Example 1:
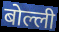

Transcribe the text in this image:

बोल्ली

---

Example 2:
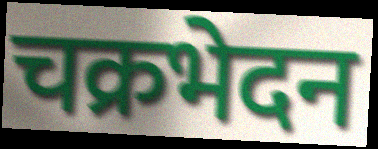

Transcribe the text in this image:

चक्रभेदन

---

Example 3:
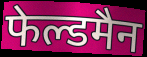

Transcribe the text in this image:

फेल्डमैन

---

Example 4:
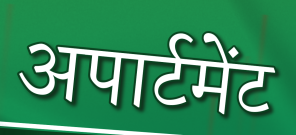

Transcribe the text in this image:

अपार्टमेंट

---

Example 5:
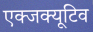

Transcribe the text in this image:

एक्जक्यूटिव